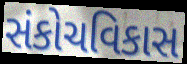
સંકોચવિકાસ